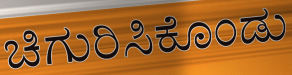
ಚಿಗುರಿಸಿಕೊಂಡು